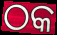
ଠକ